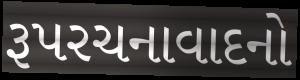
રૂપરચનાવાદનો